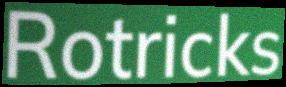
Rotricks